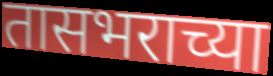
तासभराच्या